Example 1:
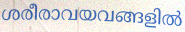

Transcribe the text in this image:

ശരീരാവയവങ്ങളിൽ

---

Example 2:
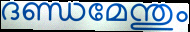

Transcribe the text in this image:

ദണ്ഡമേന്തും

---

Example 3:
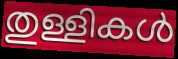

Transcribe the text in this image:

തുള്ളികൾ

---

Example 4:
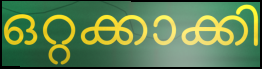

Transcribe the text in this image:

ഒറ്റക്കാക്കി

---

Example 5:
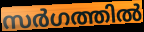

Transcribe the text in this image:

സർഗത്തിൽ